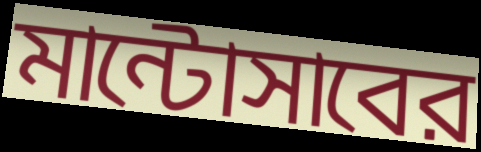
মান্টোসাবের